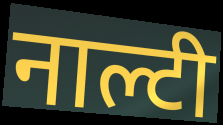
नाल्टी